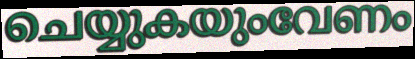
ചെയ്യുകയുംവേണം